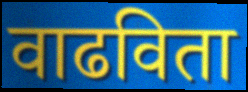
वाढविता